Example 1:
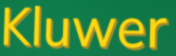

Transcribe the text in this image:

Kluwer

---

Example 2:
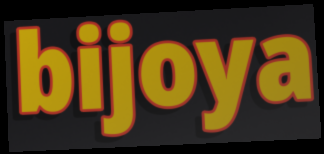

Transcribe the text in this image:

bijoya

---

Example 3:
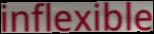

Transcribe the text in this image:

inflexible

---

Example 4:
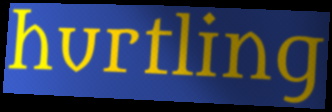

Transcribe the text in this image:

hurtling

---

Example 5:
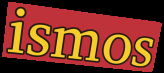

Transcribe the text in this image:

ismos